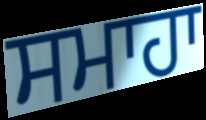
ਸਮਾਹਾ